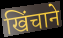
खिंचाने